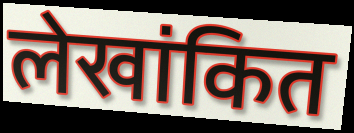
लेखांकित